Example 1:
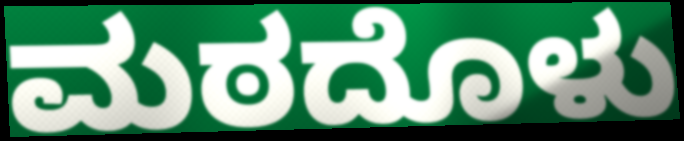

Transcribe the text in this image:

ಮಠದೊಳು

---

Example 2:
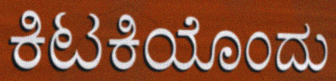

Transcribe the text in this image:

ಕಿಟಕಿಯೊಂದು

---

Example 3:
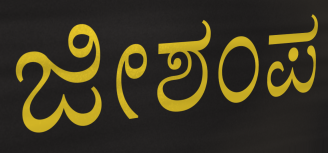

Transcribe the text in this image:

ಜೀಶಂಪ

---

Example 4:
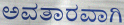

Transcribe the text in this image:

ಅವತಾರವಾಗಿ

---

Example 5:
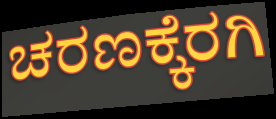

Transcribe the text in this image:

ಚರಣಕ್ಕೆರಗಿ